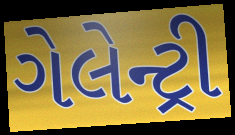
ગેલેન્ટ્રી